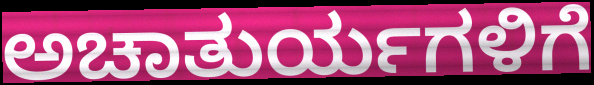
ಅಚಾತುರ್ಯಗಳಿಗೆ